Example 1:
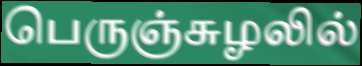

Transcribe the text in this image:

பெருஞ்சுழலில்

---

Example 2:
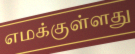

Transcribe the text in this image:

எமக்குள்ளது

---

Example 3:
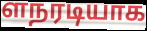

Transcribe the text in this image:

ளநரடியாக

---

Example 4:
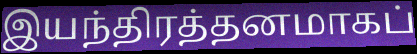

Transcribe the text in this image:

இயந்திரத்தனமாகப்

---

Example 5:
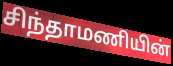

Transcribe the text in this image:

சிந்தாமணியின்